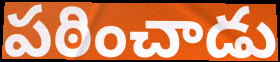
పఠించాడు